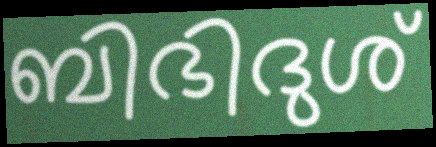
ബിഭിദുശ്